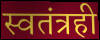
स्वतंत्रही